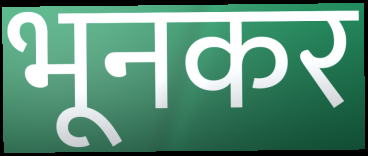
भूनकर